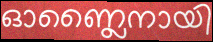
ഓണ്ലൈനായി